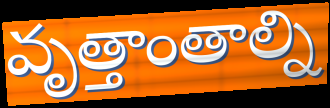
వృత్తాంతాల్ని